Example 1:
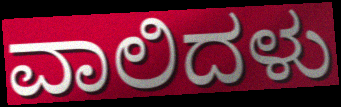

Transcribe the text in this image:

ವಾಲಿದಳು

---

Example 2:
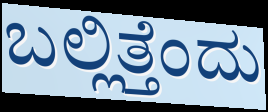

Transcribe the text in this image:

ಬಲ್ಲಿತ್ತೆಂದು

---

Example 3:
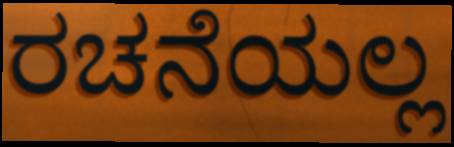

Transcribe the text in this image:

ರಚನೆಯಲ್ಲ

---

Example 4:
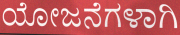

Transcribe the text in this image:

ಯೋಜನೆಗಳಾಗಿ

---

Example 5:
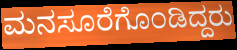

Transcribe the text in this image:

ಮನಸೂರೆಗೊಂಡಿದ್ದರು